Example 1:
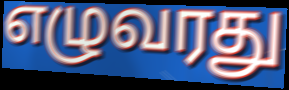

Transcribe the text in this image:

எழுவரது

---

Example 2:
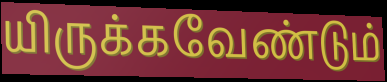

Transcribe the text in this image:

யிருக்கவேண்டும்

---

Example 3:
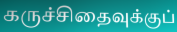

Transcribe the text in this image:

கருச்சிதைவுக்குப்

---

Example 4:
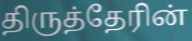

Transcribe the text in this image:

திருத்தேரின்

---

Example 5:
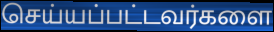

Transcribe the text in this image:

செய்யப்பட்டவர்களை